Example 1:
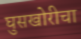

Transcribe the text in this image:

घुसखोरीचा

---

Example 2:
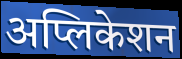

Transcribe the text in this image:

अप्लिकेशन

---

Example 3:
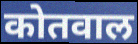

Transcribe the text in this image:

कोतवाल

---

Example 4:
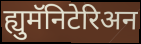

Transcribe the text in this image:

ह्युमॅनिटेरिअन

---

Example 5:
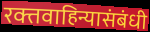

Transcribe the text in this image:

रक्तवाहिन्यासंबंधी